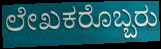
ಲೇಖಕರೊಬ್ಬರು